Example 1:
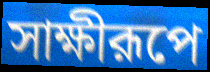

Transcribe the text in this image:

সাক্ষীরূপে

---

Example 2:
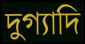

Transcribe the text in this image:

দুগ্যাদি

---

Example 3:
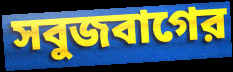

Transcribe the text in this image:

সবুজবাগের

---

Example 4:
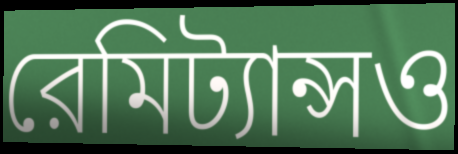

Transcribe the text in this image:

রেমিট্যান্সও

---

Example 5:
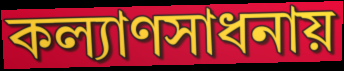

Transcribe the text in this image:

কল্যাণসাধনায়